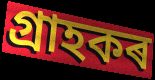
গ্ৰাহকৰ